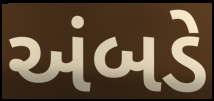
અંબડે